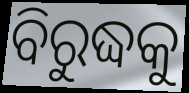
ବିରୁଦ୍ଧକୁ